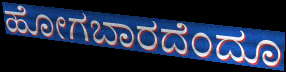
ಹೋಗಬಾರದೆಂದೂ